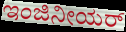
ಇಂಜಿನೀಯರ್